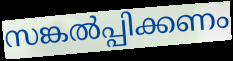
സങ്കൽപ്പിക്കണം